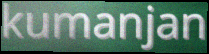
kumanjan